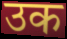
उक